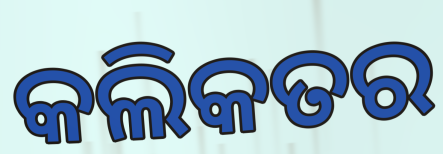
କଲିକତର